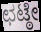
ಛಟ್ಠೇ